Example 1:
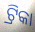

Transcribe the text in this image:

ଟ୍ରିକା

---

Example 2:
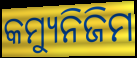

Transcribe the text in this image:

କମ୍ୟୁନିଜିମ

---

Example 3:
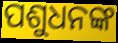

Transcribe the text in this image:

ପଶୁଧନଙ୍କ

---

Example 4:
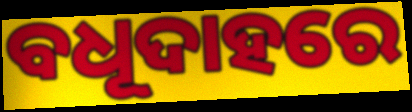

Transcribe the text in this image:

ବଧୂଦାହରେ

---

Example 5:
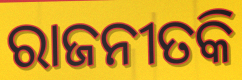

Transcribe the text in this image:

ରାଜନୀତକି